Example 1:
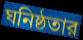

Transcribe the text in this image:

ঘনিষ্ঠতার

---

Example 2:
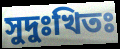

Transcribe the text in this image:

সুদুঃখিতঃ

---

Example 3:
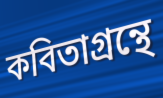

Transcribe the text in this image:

কবিতাগ্রন্থে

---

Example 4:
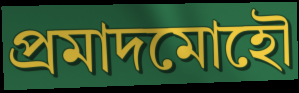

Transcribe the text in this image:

প্রমাদমোহৌ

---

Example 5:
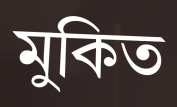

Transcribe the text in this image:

মুকিত